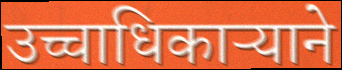
उच्चाधिकाऱ्याने